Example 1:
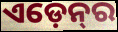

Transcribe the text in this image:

ଏଡ଼େନ୍‍ର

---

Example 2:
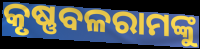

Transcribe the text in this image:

କୃଷ୍ଣବଳରାମଙ୍କୁ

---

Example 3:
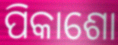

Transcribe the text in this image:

ପିକାଶୋ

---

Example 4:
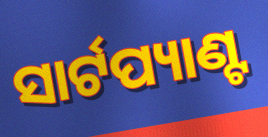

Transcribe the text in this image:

ସାର୍ଟପ୍ୟାଣ୍ଟ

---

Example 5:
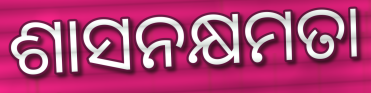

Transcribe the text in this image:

ଶାସନକ୍ଷମତା